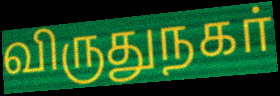
விருதுநகர்